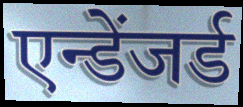
एन्डेंजर्ड